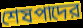
শেষপাদের